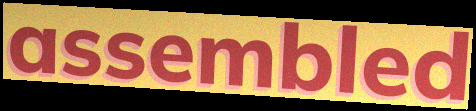
assembled